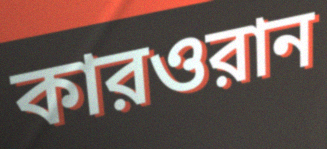
কারওরান